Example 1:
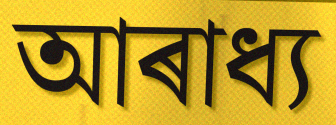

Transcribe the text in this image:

আৰাধ্য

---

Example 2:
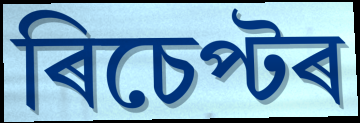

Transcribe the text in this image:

ৰিচেপ্টৰ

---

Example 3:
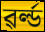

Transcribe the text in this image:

ৱৰ্ল্ড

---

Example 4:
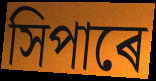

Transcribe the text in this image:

সিপাৰে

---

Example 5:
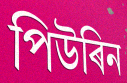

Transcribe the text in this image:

পিউৰিন